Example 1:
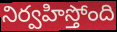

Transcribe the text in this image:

నిర్వహిస్తోంది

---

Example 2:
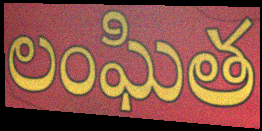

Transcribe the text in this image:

లంఘిత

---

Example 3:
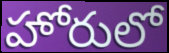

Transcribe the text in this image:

హోరులో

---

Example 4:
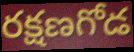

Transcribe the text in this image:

రక్షణగోడ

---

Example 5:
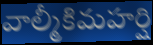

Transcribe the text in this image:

వాల్మీకిమహర్షి